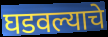
घडवल्याचे